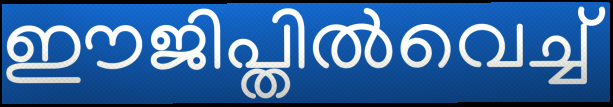
ഈജിപ്തിൽവെച്ച്